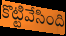
కొట్టివేసింది